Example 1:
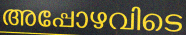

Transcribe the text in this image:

അപ്പോഴവിടെ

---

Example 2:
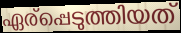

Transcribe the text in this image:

ഏര്പ്പെടുത്തിയത്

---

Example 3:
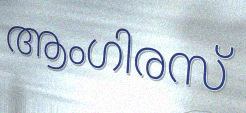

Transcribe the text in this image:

ആംഗിരസ്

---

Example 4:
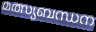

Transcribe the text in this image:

മത്സ്യബന്ധന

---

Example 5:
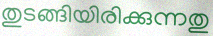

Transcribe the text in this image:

തുടങ്ങിയിരിക്കുന്നതു